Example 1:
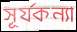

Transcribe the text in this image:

সূর্যকন্যা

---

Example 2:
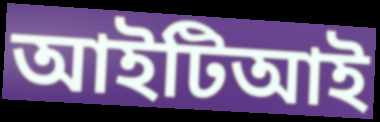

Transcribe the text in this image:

আইটিআই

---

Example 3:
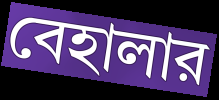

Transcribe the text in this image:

বেহালার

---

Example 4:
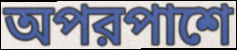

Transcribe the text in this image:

অপরপাশে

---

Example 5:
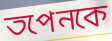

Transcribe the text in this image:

তপেনকে